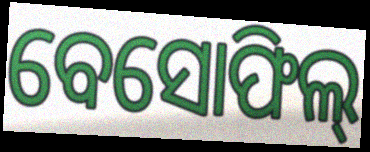
ବେସୋଫିଲ୍